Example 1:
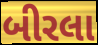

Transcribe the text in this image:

બીરલા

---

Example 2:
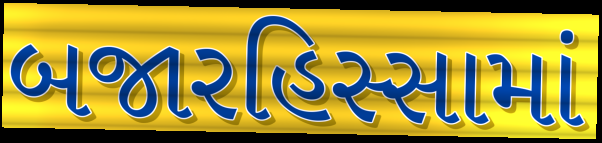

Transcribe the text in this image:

બજારહિસ્સામાં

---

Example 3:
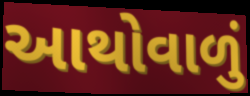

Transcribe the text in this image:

આથોવાળું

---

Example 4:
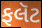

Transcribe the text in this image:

ફલૅટ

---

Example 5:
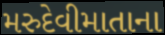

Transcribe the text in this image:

મરુદેવીમાતાના